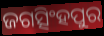
ଜଗତ୍ସିଂହପୁର